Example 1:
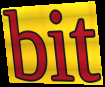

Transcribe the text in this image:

bit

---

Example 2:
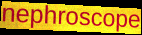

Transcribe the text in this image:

nephroscope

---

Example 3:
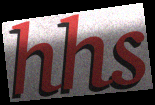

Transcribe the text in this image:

hhs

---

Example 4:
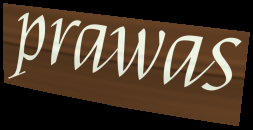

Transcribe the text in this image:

prawas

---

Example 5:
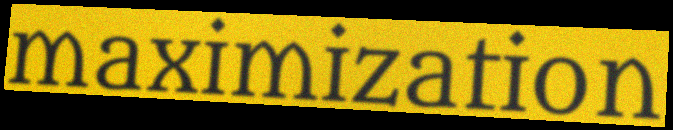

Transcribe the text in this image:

maximization